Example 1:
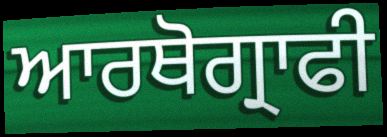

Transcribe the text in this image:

ਆਰਥੋਗ੍ਰਾਫੀ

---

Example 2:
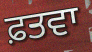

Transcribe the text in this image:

ਫ਼ਤਵਾ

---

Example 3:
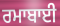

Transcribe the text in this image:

ਰਮਾਬਾਈ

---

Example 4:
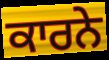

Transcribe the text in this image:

ਕਾਰਨੇ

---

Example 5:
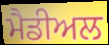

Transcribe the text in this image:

ਮੈਡੀਅਲ